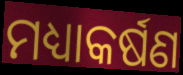
ମଧ୍ୟାକର୍ଷଣ